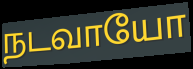
நடவாயோ